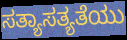
ಸತ್ಯಾಸತ್ಯತೆಯು